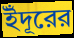
ইঁদূরের